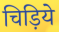
चिड़िये